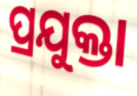
ପ୍ରଯୁକ୍ତା